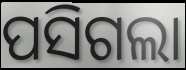
ପସିଗଲା